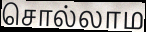
சொல்லாம